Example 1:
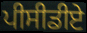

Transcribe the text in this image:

ਪੀਸੀਡੀਏ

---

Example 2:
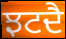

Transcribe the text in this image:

ਝਟਦੈ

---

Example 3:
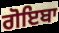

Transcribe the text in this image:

ਗੋਇਬਾ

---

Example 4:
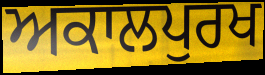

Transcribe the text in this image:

ਅਕਾਲਪੁਰਖ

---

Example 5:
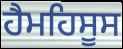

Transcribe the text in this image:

ਹੈਮਹਿਸੂਸ